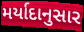
મર્યાદાનુસાર